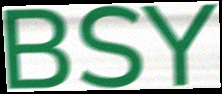
BSY